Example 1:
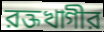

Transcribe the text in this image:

রক্তখাগীর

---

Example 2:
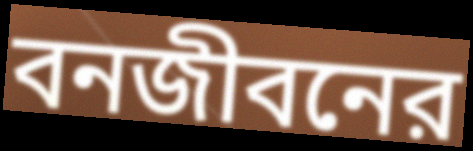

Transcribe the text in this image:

বনজীবনের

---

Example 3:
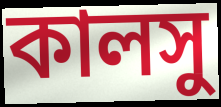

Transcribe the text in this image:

কালসু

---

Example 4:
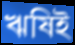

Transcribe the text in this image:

ঋষিই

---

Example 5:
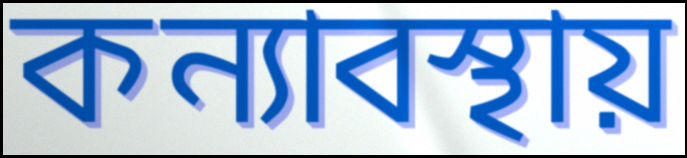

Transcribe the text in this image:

কন্যাবস্থায়